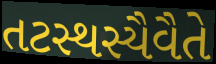
તટસ્થસ્યૈવૈતે